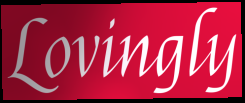
Lovingly